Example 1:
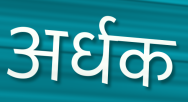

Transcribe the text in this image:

अर्धक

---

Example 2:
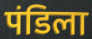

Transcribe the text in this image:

पंडिला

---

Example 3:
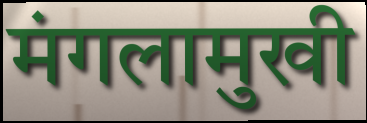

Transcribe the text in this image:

मंगलामुखी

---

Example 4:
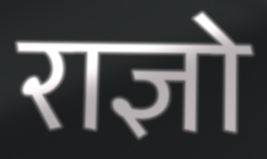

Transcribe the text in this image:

राज्ञो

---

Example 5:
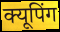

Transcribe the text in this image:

क्यूपिंग